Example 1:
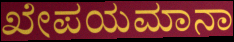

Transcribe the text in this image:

ಖೇಪಯಮಾನಾ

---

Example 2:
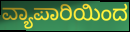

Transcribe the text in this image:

ವ್ಯಾಪಾರಿಯಿಂದ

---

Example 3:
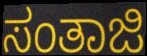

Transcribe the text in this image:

ಸಂತಾಜಿ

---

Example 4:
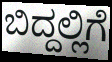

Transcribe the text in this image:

ಬಿದ್ದಲ್ಲಿಗೆ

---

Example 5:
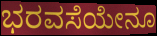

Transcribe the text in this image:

ಭರವಸೆಯೇನೂ